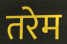
तरेम